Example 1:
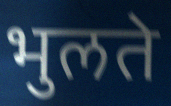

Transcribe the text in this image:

भुलते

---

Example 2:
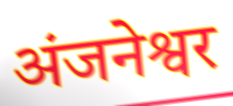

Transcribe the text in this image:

अंजनेश्वर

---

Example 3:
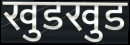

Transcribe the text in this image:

खुडखुड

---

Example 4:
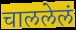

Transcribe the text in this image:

चाललेलं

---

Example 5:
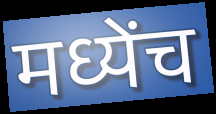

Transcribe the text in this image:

मध्येंच